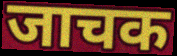
जाचक